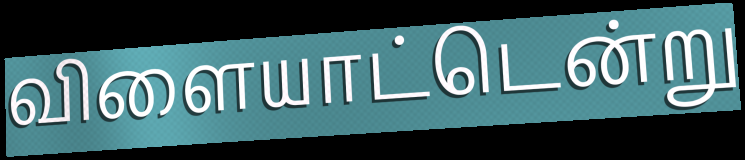
விளையாட்டென்று